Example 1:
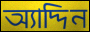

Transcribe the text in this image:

অ্যাদ্দিন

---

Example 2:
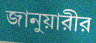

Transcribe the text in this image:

জানুয়ারীর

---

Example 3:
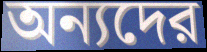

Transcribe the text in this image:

অন্যদের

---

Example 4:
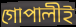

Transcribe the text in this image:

গোপালীই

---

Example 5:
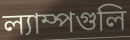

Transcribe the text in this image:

ল্যাম্পগুলি